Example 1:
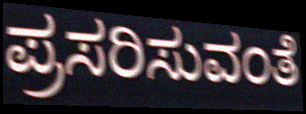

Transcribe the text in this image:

ಪ್ರಸರಿಸುವಂತೆ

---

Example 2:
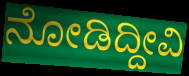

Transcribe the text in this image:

ನೋಡಿದ್ದೀವಿ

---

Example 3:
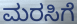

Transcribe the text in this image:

ಮರಸಿಗೆ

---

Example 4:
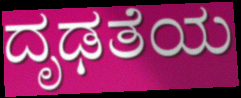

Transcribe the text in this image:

ದೃಢತೆಯ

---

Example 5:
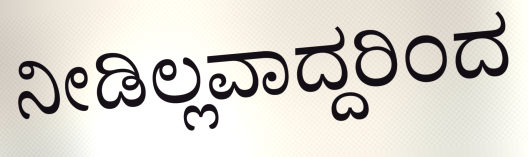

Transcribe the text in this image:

ನೀಡಿಲ್ಲವಾದ್ದರಿಂದ